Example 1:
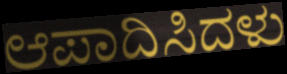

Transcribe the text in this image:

ಆಪಾದಿಸಿದಳು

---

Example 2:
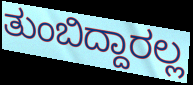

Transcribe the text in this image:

ತುಂಬಿದ್ದಾರಲ್ಲ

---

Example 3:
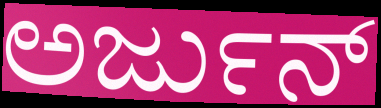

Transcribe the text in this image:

ಅರ್ಜುನ್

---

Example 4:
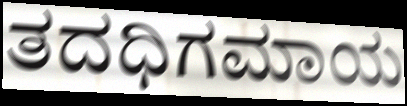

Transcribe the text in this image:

ತದಧಿಗಮಾಯ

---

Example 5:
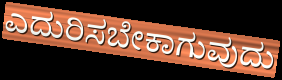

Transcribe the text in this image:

ಎದುರಿಸಬೇಕಾಗುವುದು